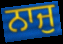
ਨਾਜੁ